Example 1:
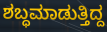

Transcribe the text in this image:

ಶಬ್ಧಮಾಡುತ್ತಿದ್ದ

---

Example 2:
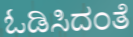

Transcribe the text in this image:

ಓಡಿಸಿದಂತೆ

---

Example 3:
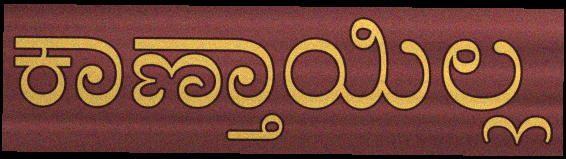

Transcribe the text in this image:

ಕಾಣ್ತಾಯಿಲ್ಲ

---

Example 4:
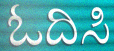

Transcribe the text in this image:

ಓದಿಸಿ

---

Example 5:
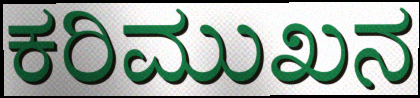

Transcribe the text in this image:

ಕರಿಮುಖನ